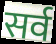
सर्व